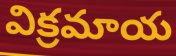
విక్రమాయ